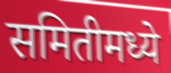
समितीमध्ये